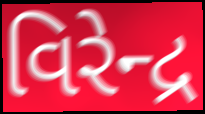
વિરેન્દ્ર